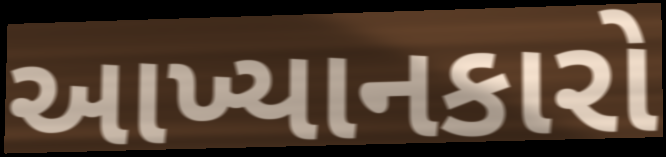
આખ્યાનકારો